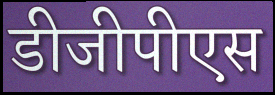
डीजीपीएस